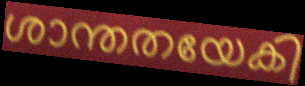
ശാന്തതയേകി